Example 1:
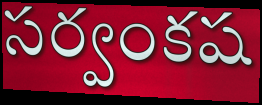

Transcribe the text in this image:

సర్వంకష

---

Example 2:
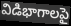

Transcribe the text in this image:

విడిభాగాలపై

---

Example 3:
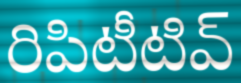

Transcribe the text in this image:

రిపిటీటివ్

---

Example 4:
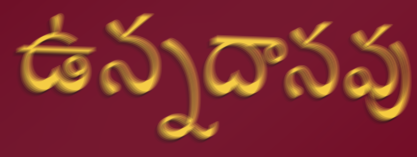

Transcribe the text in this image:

ఉన్నదానవు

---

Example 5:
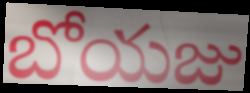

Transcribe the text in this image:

బోయజు